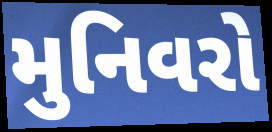
મુનિવરો